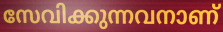
സേവിക്കുന്നവനാണ്